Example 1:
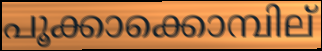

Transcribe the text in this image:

പൂക്കാക്കൊമ്പില്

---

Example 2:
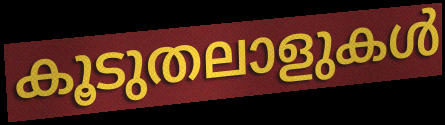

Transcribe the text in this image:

കൂടുതലാളുകൾ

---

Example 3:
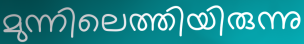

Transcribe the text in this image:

മുന്നിലെത്തിയിരുന്നു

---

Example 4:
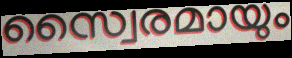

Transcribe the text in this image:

സ്വൈരമായും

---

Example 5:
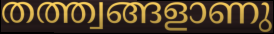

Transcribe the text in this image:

തത്ത്വങ്ങളാണു